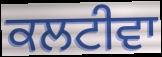
ਕਲਟੀਵਾ